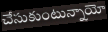
చేసుకుంటున్నాయో